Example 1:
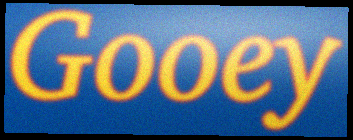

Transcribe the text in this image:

Gooey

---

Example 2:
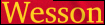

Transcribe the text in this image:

Wesson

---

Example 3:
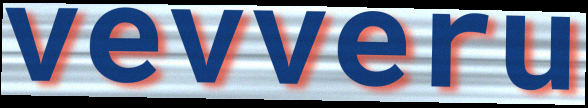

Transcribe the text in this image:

vevveru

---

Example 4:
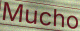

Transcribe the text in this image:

Mucho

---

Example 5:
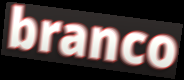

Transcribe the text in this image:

branco